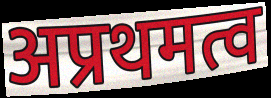
अप्रथमत्व